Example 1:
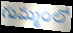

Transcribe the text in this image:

గుమ్మంలో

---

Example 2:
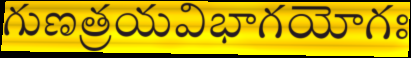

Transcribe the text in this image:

గుణత్రయవిభాగయోగః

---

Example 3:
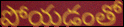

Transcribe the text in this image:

పోయడంతో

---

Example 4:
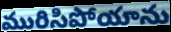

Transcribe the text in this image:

మురిసిపోయాను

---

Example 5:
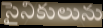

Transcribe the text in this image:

సైనికులును